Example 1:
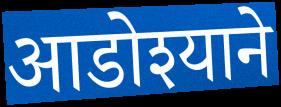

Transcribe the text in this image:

आडोश्याने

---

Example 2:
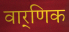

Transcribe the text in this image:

वार्णिक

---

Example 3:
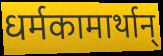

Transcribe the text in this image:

धर्मकामार्थान्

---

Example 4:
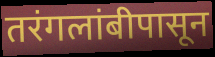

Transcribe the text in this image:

तरंगलांबीपासून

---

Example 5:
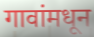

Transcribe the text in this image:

गावांमधून